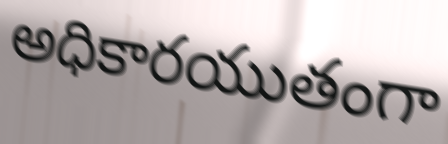
అధికారయుతంగా